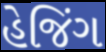
હેજિંગ